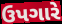
ઉપગારે